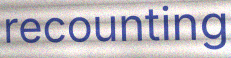
recounting